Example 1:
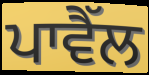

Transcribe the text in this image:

ਪਾਵੈੱਲ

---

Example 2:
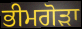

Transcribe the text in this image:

ਭੀਮਗੋੜਾ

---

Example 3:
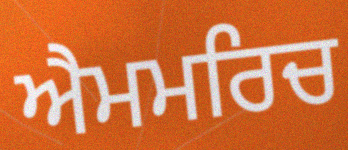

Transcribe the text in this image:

ਐਮਮਰਿਚ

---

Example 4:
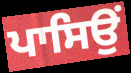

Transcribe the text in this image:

ਪਾਸਿਉਂ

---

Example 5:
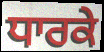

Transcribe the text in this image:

ਧਾਰਕੇ